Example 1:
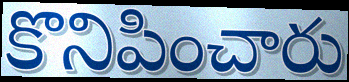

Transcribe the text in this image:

కొనిపించారు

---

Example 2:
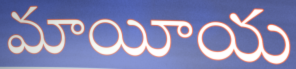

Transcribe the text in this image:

మాయీయ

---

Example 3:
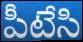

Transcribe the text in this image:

పీటేసి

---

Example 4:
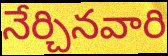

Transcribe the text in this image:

నేర్చినవారి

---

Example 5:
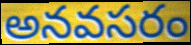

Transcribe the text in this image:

అనవసరం